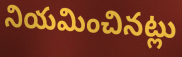
నియమించినట్లు